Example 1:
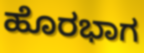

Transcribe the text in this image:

ಹೊರಭಾಗ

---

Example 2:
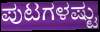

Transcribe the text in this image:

ಪುಟಗಳಷ್ಟು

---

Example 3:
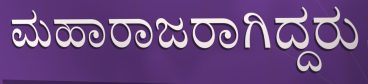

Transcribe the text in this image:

ಮಹಾರಾಜರಾಗಿದ್ದರು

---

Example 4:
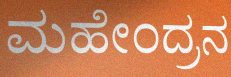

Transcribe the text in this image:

ಮಹೇಂದ್ರನ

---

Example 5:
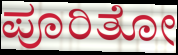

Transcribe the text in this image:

ಪೂರಿತೋ